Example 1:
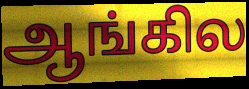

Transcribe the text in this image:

ஆங்கில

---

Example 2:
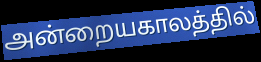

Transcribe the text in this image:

அன்றையகாலத்தில்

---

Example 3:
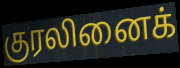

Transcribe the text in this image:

குரலினைக்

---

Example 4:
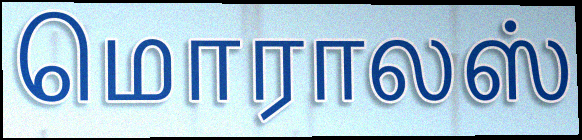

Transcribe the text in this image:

மொராலஸ்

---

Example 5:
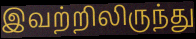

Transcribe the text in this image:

இவற்றிலிருந்து